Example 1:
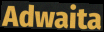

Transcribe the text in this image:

Adwaita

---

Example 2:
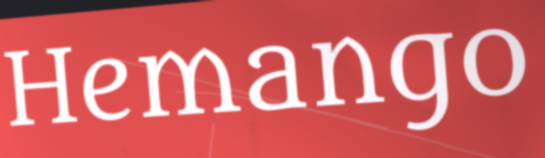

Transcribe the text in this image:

Hemango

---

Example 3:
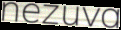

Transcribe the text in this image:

nezuva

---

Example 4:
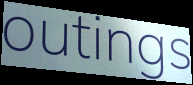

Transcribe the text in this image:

outings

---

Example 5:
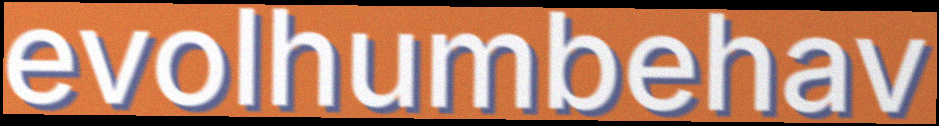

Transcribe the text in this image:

evolhumbehav